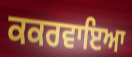
ਕਕਰਵਾਇਆ